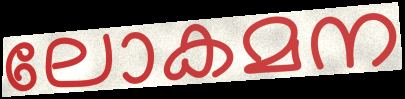
ലോകമന